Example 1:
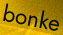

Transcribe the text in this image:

bonke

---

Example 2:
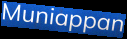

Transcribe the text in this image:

Muniappan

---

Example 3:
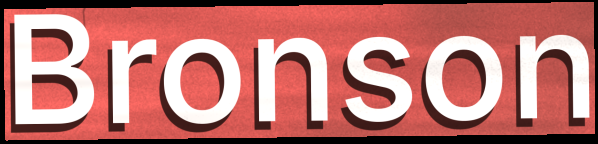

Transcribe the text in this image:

Bronson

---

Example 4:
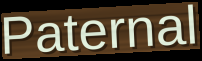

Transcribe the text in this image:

Paternal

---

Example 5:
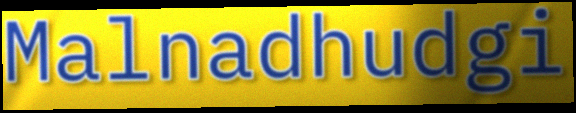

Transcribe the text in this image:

Malnadhudgi